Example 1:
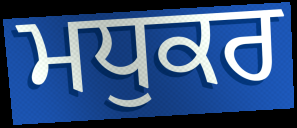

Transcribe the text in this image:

ਮਧੁਕਰ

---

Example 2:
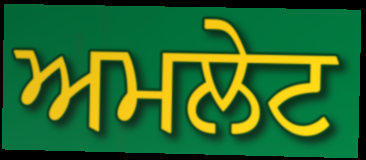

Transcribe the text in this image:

ਅਮਲੇਟ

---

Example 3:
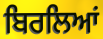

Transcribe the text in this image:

ਬਿਰਲਿਆਂ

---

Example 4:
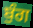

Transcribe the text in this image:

ਬੁੰਗ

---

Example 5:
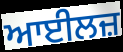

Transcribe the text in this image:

ਆਈਲਜ਼